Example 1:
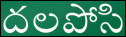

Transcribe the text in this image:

దలపోసి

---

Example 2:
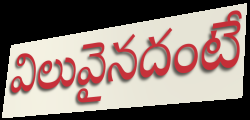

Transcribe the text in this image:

విలువైనదంటే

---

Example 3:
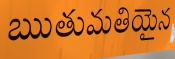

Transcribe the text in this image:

ఋతుమతియైన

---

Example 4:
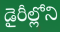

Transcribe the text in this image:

డైరీల్లోని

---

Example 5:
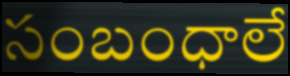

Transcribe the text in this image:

సంబంధాలే